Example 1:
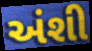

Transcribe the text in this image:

અંશી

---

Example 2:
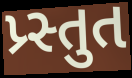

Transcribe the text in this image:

પ્ર્સ્તુત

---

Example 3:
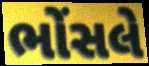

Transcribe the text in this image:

ભોંસલે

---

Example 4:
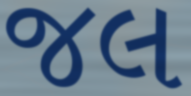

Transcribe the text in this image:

જલ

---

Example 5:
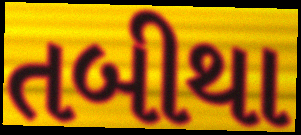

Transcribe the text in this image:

તબીથા